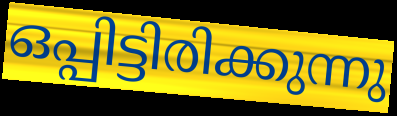
ഒപ്പിട്ടിരിക്കുന്നു